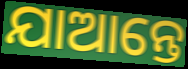
ଯାଆନ୍ତେ